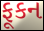
ફૂકન